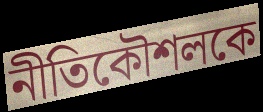
নীতিকৌশলকে